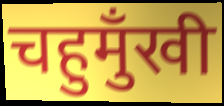
चहुमुँखी